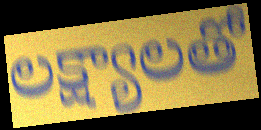
లక్ష్యాలతో